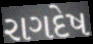
રાગદેષ